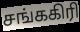
சங்ககிரி